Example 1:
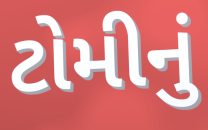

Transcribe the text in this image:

ટોમીનું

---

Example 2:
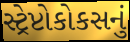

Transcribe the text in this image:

સ્ટ્રેપ્ટોકોકસનું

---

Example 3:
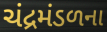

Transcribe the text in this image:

ચંદ્રમંડળના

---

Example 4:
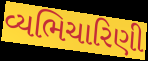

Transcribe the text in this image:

વ્યભિચારિણી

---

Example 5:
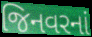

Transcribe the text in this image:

જિનવરનાં